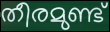
തീരമുണ്ട്